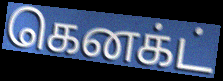
கெனக்ட்